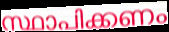
സ്ഥാപിക്കണം